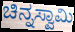
ಚಿನ್ನಸ್ವಾಮಿ